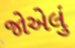
જોએલું